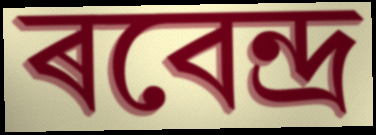
ৰবেন্দ্ৰ